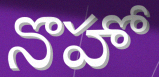
నొహో